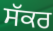
ਸੱਕਰ